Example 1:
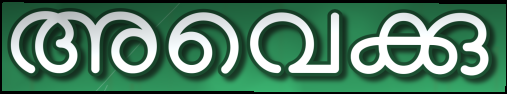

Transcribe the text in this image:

അവെക്കു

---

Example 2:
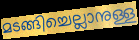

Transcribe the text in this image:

മടങ്ങിച്ചെല്ലാനുള്ള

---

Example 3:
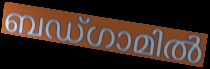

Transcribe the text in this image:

ബഡ്ഗാമിൽ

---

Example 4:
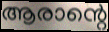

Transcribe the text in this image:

ആരാന്റെ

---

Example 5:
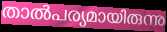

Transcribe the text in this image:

താൽപര്യമായിരുന്നു